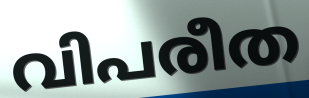
വിപരീത